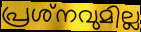
പ്രശ്‌നവുമില്ല